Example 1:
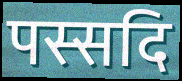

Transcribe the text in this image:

पस्सदि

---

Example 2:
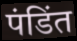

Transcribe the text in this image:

पंडिंत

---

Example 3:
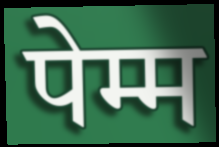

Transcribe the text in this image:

पेम्म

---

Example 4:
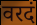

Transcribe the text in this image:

वरदं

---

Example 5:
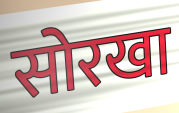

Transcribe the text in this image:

सोरखा